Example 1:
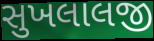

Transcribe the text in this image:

સુખલાલજી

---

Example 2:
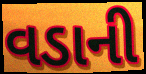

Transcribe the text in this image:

વડાની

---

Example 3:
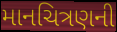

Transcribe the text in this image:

માનચિત્રણની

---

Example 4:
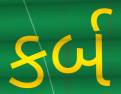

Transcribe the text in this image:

કર્બ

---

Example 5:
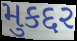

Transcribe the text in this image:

મુકદ્દર